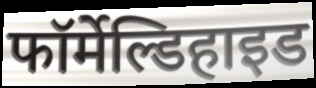
फॉर्मेल्डिहाइड